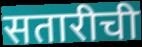
सतारीची